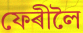
ফেৰীলৈ